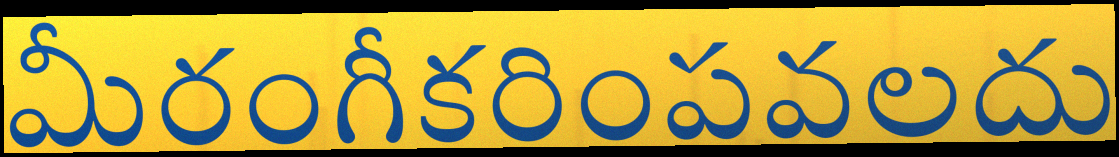
మీరంగీకరింపవలదు